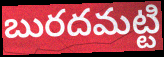
బురదమట్టి